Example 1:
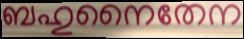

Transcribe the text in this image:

ബഹുനൈതേന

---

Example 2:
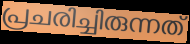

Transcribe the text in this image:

പ്രചരിച്ചിരുന്നത്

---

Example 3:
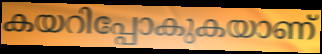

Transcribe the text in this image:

കയറിപ്പോകുകയാണ്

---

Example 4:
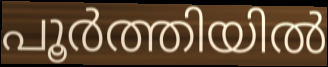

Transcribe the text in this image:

പൂർത്തിയിൽ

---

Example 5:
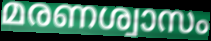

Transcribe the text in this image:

മരണശ്വാസം